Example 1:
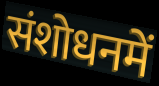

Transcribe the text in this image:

संशोधनमें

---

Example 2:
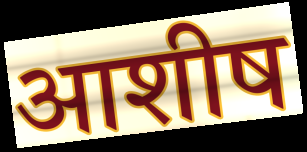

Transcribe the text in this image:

आशीष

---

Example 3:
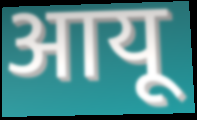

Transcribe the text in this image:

आयू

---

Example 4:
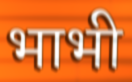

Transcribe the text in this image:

भाभी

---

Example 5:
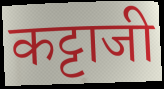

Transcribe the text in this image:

कट्टाजी